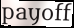
payoff